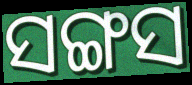
ସଙ୍ଗସ